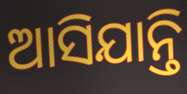
ଆସିଯାନ୍ତି